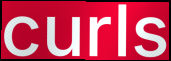
curls